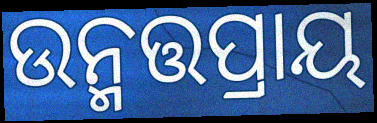
ଉନ୍ମତ୍ତପ୍ରାୟ